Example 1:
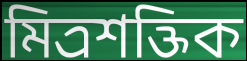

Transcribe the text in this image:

মিত্ৰশক্তিক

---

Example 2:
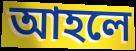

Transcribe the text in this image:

আহলে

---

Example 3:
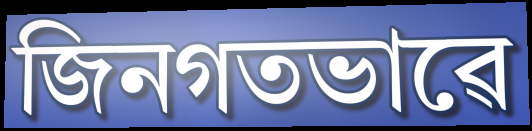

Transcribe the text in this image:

জিনগতভাৱে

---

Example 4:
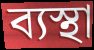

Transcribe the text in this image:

ব্যস্থা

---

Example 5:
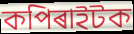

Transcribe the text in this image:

কপিৰাইটক